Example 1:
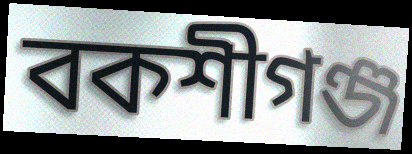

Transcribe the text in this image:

বকশীগঞ্জ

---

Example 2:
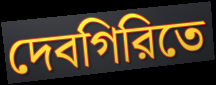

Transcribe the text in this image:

দেবগিরিতে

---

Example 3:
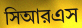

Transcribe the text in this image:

সিআরএস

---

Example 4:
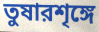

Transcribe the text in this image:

তুষারশৃঙ্গে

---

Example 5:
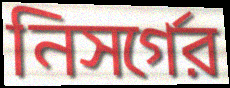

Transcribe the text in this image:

নিসর্গের